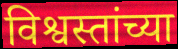
विश्वस्तांच्या